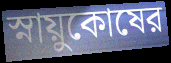
স্নায়ুকোষের